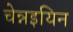
चेन्नइयिन